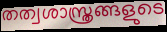
തത്വശാസ്ത്രങ്ങളുടെ